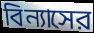
বিন্যাসের